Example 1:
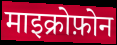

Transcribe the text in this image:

माइक्रोफ़ोन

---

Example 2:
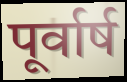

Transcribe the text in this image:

पूर्वार्ष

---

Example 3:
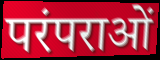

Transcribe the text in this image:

परंपराओं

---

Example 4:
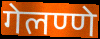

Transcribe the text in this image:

गेलण्णे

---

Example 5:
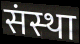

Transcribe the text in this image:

संस्था